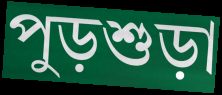
পুড়শুড়া